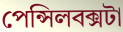
পেন্সিলবক্সটা